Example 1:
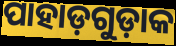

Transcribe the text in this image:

ପାହାଡ଼ଗୁଡ଼ାକ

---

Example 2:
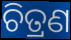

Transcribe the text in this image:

ଚିତ୍ରଣ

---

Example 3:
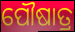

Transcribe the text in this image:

ପୌଷାତ୍ର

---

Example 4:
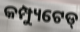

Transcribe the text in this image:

କମ୍ପ୍ୟୁଟେଡ୍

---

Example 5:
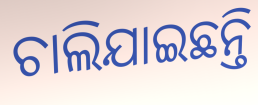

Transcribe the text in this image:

ଚାଲିଯାଇଛନ୍ତି